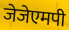
जेजेएमपी